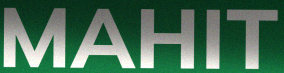
MAHIT